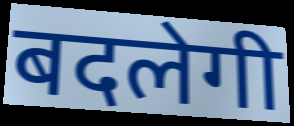
बदलेगी